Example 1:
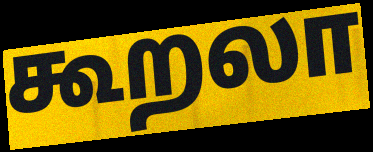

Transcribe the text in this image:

கூறலா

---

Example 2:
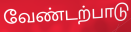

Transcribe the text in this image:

வேண்டற்பாடு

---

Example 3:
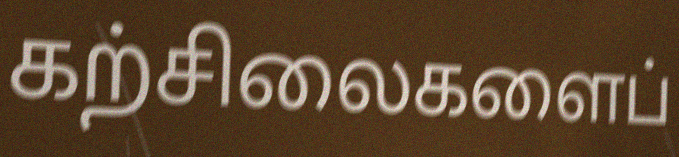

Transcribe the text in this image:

கற்சிலைகளைப்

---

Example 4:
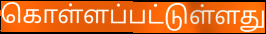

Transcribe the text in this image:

கொள்ளப்பட்டுள்ளது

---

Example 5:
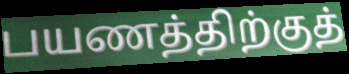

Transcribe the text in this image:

பயணத்திற்குத்